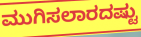
ಮುಗಿಸಲಾರದಷ್ಟು